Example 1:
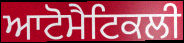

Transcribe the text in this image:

ਆਟੋਮੈਟਿਕਲੀ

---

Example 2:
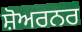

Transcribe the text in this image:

ਸ਼ੋਅਰਨਰ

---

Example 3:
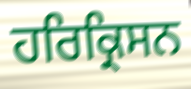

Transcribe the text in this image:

ਹਰਿਕ੍ਰਿਸਨ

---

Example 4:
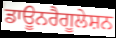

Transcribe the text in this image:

ਡਾਊਨਰੈਗੂਲੇਸ਼ਨ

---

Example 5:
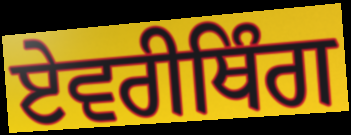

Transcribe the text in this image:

ਏਵਰੀਥਿੰਗ